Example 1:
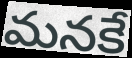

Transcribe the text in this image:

మనకే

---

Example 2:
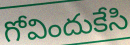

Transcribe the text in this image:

గోవిందుకేసి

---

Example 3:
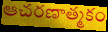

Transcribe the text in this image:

ఆచరణాత్మకం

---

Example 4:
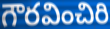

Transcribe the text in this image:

గౌరవించిరి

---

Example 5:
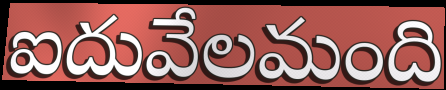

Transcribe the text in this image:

ఐదువేలమంది